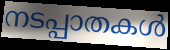
നടപ്പാതകൾ